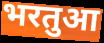
भरतुआ